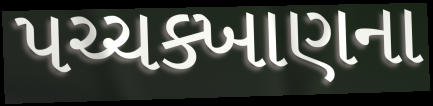
પચ્ચક્ખાણના